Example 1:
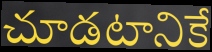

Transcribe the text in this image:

చూడటానికే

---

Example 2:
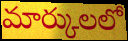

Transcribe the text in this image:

మార్కులలో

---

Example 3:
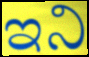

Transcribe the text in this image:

ఇని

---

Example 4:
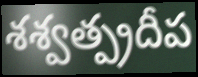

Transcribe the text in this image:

శశ్వత్ప్రదీప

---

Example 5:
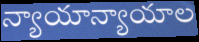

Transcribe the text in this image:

న్యాయాన్యాయాల